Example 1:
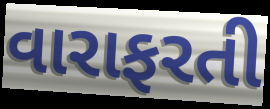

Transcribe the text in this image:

વારાફરતી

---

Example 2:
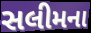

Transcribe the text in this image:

સલીમના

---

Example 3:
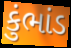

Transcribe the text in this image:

કુંભાંડ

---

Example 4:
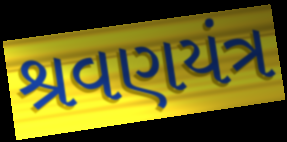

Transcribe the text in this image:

શ્રવણયંત્ર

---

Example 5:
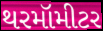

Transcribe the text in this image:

થરમૉમીટર